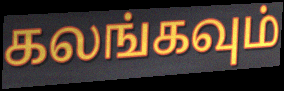
கலங்கவும்